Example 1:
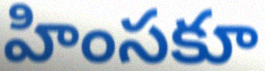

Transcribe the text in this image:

హింసకూ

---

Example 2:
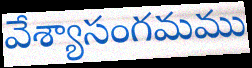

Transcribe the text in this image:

వేశ్యాసంగమము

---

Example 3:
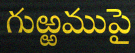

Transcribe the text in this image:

గుఱ్ఱముపై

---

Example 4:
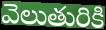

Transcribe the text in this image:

వెలుతురికి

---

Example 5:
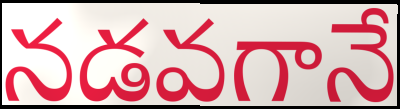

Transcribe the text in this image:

నడవగానే